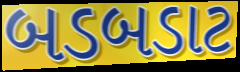
બડબડાટ